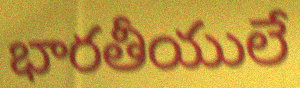
భారతీయులే